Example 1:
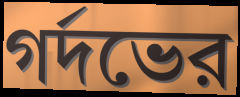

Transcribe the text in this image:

গর্দভের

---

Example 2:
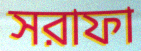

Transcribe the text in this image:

সরাফা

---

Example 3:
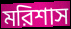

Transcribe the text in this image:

মরিশাস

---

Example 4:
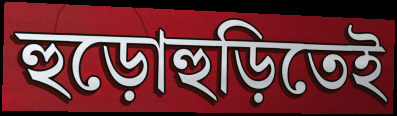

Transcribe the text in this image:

হুড়োহুড়িতেই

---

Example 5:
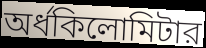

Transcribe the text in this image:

অর্ধকিলোমিটার